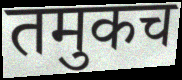
तमुकच